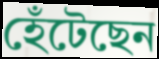
হেঁটেছেন